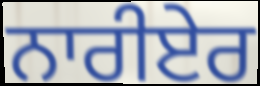
ਨਾਰੀਏਰ